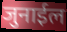
जुनाईल